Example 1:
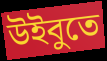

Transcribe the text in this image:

উইবুতে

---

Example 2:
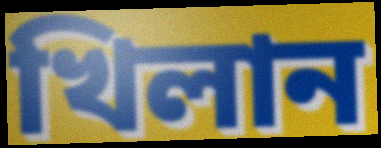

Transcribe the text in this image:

খিলান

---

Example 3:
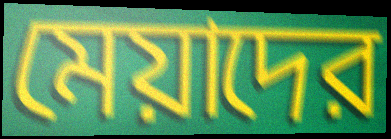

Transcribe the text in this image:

মেয়াদের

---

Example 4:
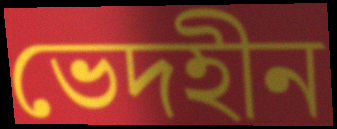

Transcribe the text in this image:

ভেদহীন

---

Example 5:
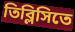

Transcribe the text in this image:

তিব্লিসিতে